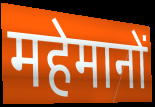
महेमानों